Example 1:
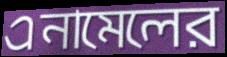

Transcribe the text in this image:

এনামেলের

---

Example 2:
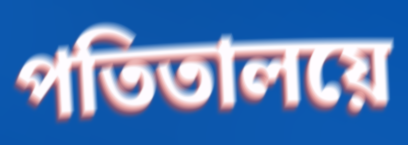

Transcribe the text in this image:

পতিতালয়ে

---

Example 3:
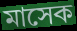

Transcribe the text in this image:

মাসেক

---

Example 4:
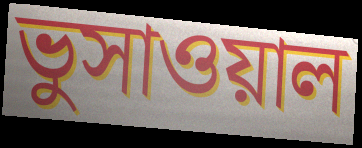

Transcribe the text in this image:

ভুসাওয়াল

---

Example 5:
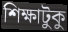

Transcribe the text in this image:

শিক্ষাটুকু